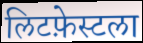
लिटफ़ेस्टला